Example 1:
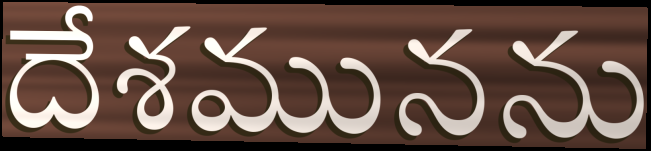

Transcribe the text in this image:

దేశమునను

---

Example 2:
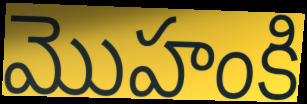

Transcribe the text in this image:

మొహంకి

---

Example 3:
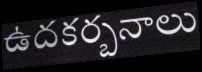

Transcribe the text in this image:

ఉదకర్బనాలు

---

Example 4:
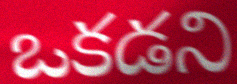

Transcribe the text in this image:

ఒకడని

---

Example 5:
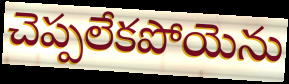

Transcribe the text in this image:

చెప్పలేకపోయెను